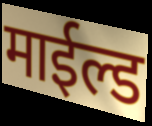
माईल्ड